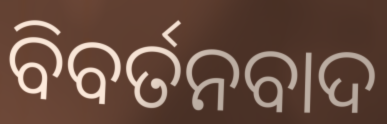
ବିବର୍ତନବାଦ